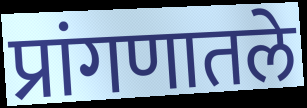
प्रांगणातले